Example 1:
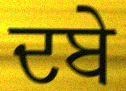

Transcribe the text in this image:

ਦਬੇ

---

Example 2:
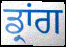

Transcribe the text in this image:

ਡ੍ਰਾਂਗ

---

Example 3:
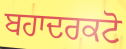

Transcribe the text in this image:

ਬਹਾਦਰਕਟੋ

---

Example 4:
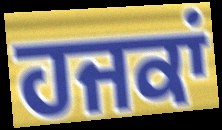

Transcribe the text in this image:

ਹਜਕਾਂ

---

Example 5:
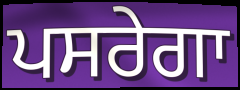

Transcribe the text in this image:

ਪਸਰੇਗਾ